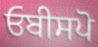
ਓਬੀਸਪੋ